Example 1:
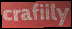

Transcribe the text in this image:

crafiily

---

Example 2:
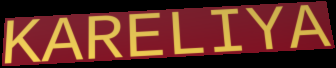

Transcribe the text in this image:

KARELIYA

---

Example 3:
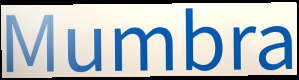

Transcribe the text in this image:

Mumbra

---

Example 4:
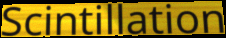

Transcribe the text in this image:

Scintillation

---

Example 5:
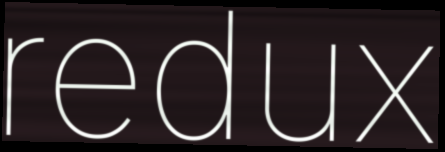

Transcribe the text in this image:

redux